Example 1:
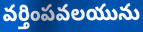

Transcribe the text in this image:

వర్తింపవలయును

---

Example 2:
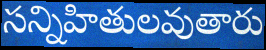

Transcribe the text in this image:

సన్నిహితులవుతారు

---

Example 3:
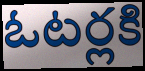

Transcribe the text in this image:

ఓటర్లకి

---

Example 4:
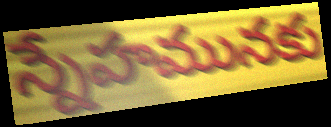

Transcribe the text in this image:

స్నేహమునకు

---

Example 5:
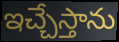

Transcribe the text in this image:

ఇచ్చేస్తాను